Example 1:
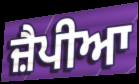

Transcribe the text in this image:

ਜ਼ੈਪੀਆ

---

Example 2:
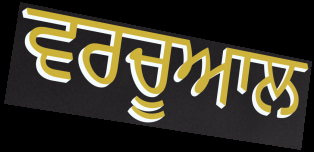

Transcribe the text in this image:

ਵਰਚੂਆਲ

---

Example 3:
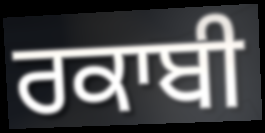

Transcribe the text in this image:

ਰਕਾਬੀ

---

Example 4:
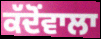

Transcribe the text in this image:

ਕੱਦੋਂਵਾਲਾ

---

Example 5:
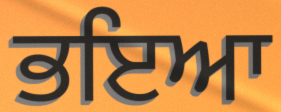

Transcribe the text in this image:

ਭਇਆ